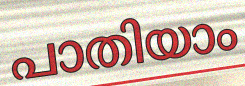
പാതിയാം